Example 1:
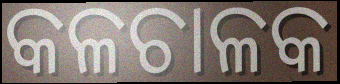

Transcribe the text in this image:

କଳଚାଳକ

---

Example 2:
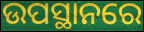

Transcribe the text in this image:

ଉପସ୍ଥାନରେ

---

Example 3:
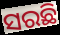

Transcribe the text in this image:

ସରଛି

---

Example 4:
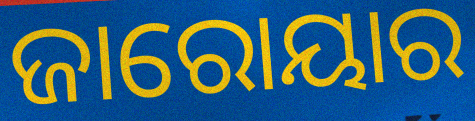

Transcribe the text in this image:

ଜାରୋୟାର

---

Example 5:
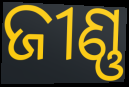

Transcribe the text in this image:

ଜୀଣ୍ଣ